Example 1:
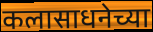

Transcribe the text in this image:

कलासाधनेच्या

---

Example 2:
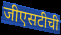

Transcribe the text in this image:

जीएसटीची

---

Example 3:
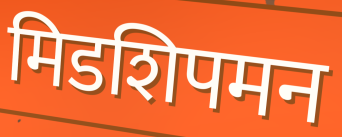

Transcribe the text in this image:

मिडशिपमन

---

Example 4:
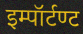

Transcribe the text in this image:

इम्पॉर्टण्ट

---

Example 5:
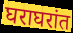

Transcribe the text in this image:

घराघरांत